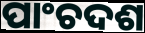
ପାଂଚଦଶ